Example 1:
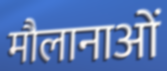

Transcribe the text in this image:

मौलानाओं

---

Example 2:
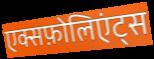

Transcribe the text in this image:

एक्सफ़ोलिएंट्स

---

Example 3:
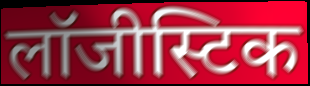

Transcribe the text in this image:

लॉजीस्टिक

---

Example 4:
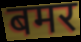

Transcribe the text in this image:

बमर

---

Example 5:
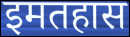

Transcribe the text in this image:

इमतहास